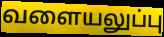
வளையலுப்பு